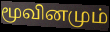
மூவினமும்